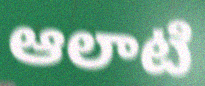
ఆలాటి